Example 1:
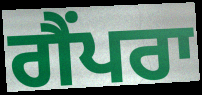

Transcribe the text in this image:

ਗੈਂਪਰਾ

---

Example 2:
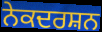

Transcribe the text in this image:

ਨੇਕਦਰਸ਼ਨ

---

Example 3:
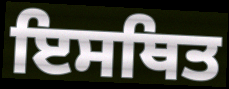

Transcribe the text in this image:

ਇਸਥਿਤ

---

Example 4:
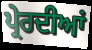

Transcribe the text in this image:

ਪ੍ਰੇਰਦੀਆਂ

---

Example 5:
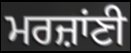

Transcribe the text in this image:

ਮਰਜ਼ਾਂਣੀ